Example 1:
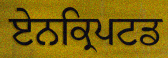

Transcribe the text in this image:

ਏਨਕ੍ਰਿਪਟਡ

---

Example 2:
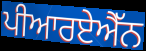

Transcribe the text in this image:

ਪੀਆਰਏਐੱਨ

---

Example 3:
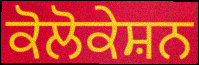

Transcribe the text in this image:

ਕੋਲੋਕੇਸ਼ਨ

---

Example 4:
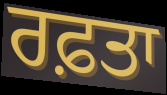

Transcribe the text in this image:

ਰਫ਼ਤਾ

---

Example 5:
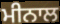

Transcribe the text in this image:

ਮੀਨਾਲ